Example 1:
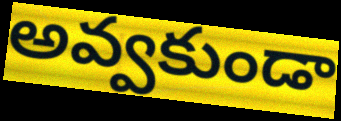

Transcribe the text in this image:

అవ్వకుండా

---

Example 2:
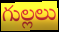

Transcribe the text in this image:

గుల్లలు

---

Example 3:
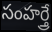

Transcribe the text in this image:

సంహర్త్రే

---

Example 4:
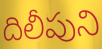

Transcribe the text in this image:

దిలీపుని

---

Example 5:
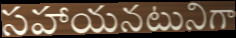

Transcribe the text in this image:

సహాయనటునిగా